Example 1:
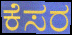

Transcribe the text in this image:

ಕೆಸರ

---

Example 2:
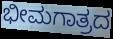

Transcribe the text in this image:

ಭೀಮಗಾತ್ರದ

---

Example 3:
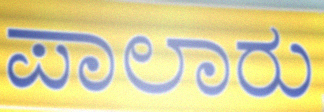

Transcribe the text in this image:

ಪಾಲಾರು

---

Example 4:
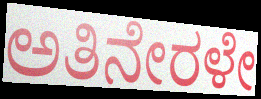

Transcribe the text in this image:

ಅತಿನೇರಳೇ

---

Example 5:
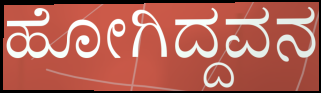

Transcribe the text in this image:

ಹೋಗಿದ್ದವನ